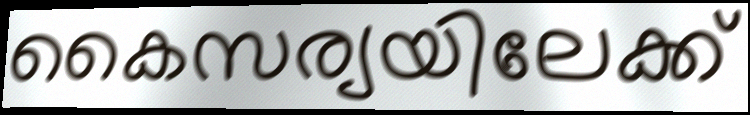
കൈസര്യയിലേക്ക്